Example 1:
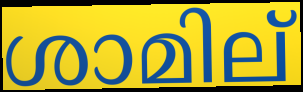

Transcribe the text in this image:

ശാമില്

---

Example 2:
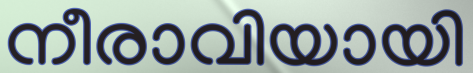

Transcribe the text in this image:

നീരാവിയായി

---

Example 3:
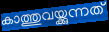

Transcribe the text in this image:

കാത്തുവയ്ക്കുന്നത്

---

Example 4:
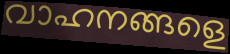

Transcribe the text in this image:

വാഹനങ്ങളെ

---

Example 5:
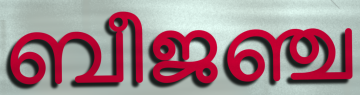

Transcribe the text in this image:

ബീജഞ്ച